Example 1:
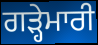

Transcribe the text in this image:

ਗੜ੍ਹੇਮਾਰੀ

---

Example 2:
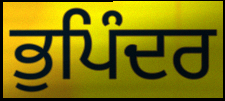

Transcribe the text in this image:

ਭੁਪਿੰਦਰ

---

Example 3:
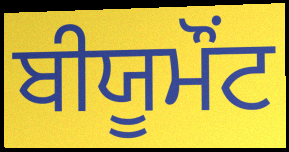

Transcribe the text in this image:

ਬੀਯੂਮੌਂਟ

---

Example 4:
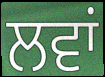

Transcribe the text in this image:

ਲਵਾਂ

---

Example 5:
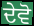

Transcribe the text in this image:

ਦੇਵੋ